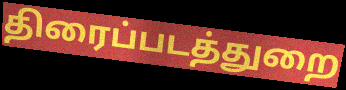
திரைப்படத்துறை